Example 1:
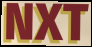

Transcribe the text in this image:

NXT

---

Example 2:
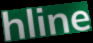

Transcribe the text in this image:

hline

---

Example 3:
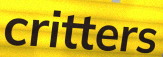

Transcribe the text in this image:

critters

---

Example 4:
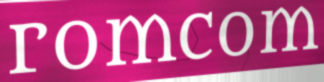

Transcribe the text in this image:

romcom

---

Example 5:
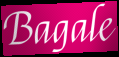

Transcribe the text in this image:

Bagale